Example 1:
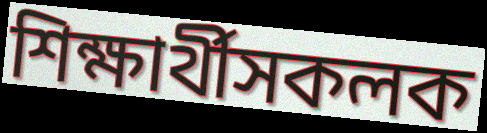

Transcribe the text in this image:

শিক্ষাৰ্থীসকলক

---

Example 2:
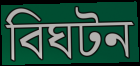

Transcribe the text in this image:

বিঘটন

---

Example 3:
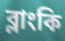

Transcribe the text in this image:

ব্লাংকি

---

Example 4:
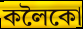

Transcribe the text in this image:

কলৈকো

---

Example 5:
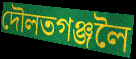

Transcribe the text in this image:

দৌলতগঞ্জলৈ